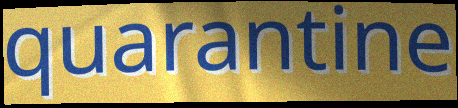
quarantine